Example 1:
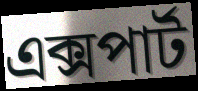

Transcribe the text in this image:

এক্সপার্ট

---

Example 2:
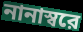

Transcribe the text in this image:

নানাস্বরে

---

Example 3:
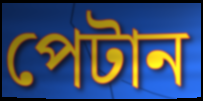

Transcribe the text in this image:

পেটান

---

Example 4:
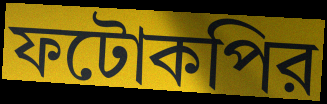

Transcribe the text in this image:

ফটোকপির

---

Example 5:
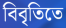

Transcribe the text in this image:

বিবৃতিতে